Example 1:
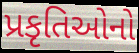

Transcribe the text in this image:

પ્રકૃતિઓનો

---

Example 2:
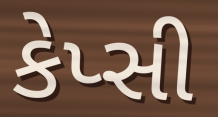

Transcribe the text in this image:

કેપ્સી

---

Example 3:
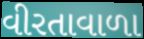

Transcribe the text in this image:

વીરતાવાળા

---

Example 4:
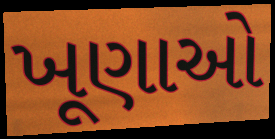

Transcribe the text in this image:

ખૂણાઓ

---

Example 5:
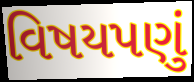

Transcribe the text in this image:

વિષયપણું